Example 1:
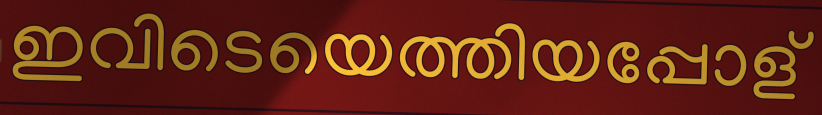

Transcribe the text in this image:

ഇവിടെയെത്തിയപ്പോള്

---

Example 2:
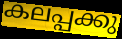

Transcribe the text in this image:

കലപ്പക്കു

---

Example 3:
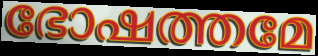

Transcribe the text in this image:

ഭോഷത്തമേ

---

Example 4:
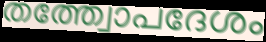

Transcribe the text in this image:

തത്ത്വോപദേശം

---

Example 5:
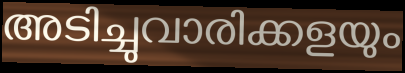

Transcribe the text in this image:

അടിച്ചുവാരിക്കളയും